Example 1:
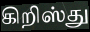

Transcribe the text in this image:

கிறிஸ்து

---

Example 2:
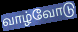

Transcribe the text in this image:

வாழ்வோடு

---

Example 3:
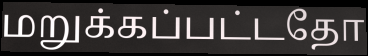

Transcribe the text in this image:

மறுக்கப்பட்டதோ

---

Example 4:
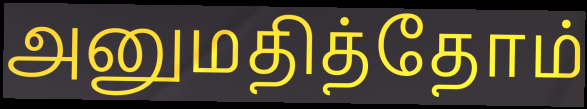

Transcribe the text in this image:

அனுமதித்தோம்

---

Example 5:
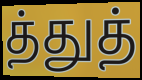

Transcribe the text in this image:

த்துத்